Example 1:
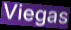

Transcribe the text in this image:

Viegas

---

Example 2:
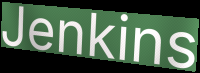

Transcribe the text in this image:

Jenkins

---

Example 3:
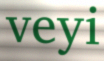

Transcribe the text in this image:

veyi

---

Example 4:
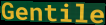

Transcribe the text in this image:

Gentile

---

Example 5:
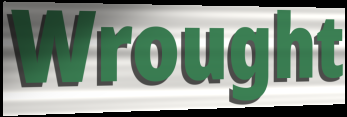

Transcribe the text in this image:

Wrought